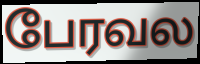
பேரவல